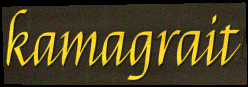
kamagrait